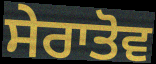
ਸੇਰਾਤੋਵ